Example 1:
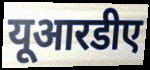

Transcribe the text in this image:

यूआरडीए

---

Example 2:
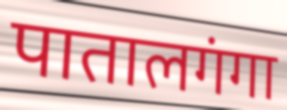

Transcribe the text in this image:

पातालगंगा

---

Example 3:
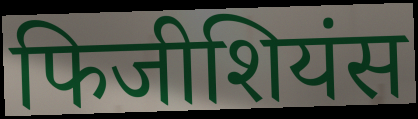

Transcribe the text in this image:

फिजीशियंस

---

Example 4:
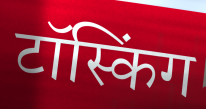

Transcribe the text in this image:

टॉस्किंग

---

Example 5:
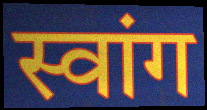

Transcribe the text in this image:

स्‍वांग